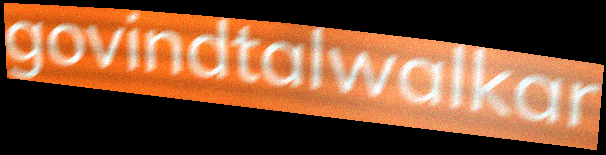
govindtalwalkar